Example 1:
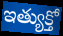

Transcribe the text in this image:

ఇత్యుక్తో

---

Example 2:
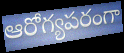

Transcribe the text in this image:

ఆరోగ్యపరంగా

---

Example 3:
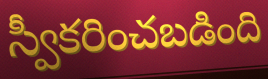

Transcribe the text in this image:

స్వీకరించబడింది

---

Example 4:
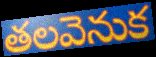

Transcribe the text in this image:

తలవెనుక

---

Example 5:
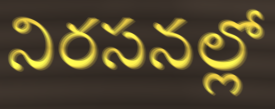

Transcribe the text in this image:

నిరసనల్లో